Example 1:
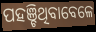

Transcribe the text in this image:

ପହଞ୍ଚିଥିବାବେଳେ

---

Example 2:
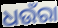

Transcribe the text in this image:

ଧଉଁରା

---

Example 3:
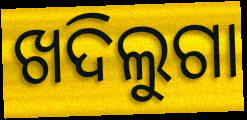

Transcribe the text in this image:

ଖଦିଲୁଗା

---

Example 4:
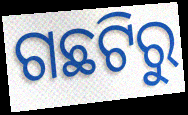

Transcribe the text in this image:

ଗଛଟିରୁ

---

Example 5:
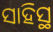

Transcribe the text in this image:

ସାହିସ୍ଥ